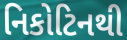
નિકોટિનથી